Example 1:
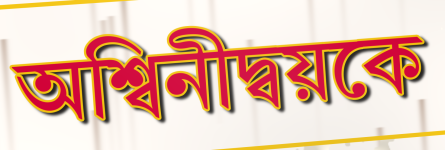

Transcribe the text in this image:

অশ্বিনীদ্বয়কে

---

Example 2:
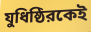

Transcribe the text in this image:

যুধিষ্ঠিরকেই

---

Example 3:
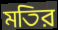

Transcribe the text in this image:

মতির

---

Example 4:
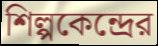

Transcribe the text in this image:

শিল্পকেন্দ্রের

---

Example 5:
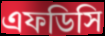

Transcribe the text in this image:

এফডিসি